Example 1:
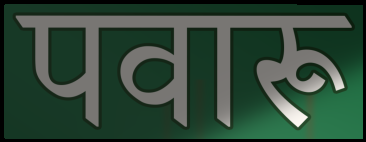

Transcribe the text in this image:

पवारू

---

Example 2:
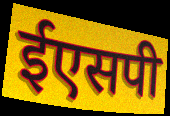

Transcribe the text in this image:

ईएसपी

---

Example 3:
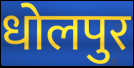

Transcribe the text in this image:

धोलपुर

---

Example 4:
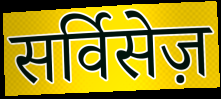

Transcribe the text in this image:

सर्विसेज़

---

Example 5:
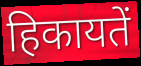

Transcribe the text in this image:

हिकायतें